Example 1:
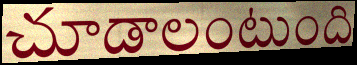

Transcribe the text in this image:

చూడాలంటుంది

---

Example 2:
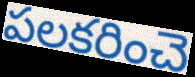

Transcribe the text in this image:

పలకరించె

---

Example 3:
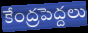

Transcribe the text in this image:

కేంద్రపెద్దలు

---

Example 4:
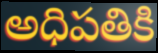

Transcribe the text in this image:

అధిపతికి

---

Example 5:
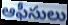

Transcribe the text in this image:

ఆఫీసులు